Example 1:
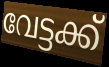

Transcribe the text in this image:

വേട്ടക്ക്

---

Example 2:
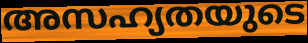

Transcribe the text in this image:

അസഹ്യതയുടെ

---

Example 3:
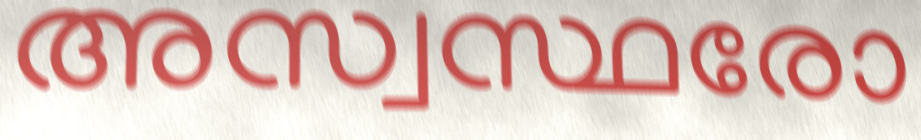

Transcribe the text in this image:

അസ്വസ്ഥരോ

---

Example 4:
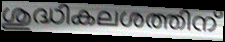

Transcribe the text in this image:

ശുദ്ധികലശത്തിന്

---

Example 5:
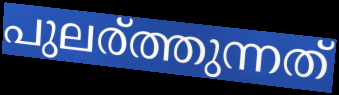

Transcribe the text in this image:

പുലര്ത്തുന്നത്